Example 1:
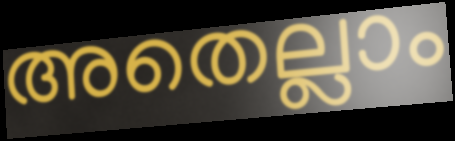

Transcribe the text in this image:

അതെല്ലാം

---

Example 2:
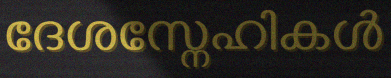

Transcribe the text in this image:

ദേശസ്നേഹികൾ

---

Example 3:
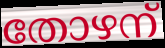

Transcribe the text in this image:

തോഴന്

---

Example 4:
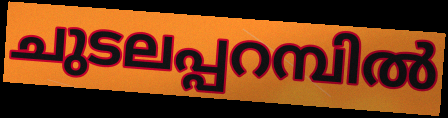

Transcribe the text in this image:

ചുടലപ്പറമ്പിൽ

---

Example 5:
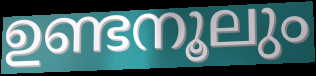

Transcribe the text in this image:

ഉണ്ടനൂലും